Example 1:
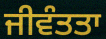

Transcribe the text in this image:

ਜੀਵੰਤਤਾ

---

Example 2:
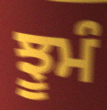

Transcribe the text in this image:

ਝੂਮੰ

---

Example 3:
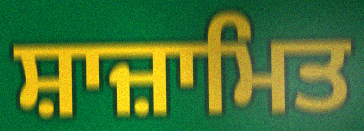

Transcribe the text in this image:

ਸ਼ਾਜ਼ਾਮਿਤ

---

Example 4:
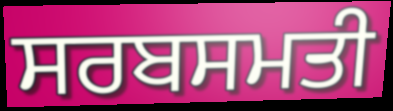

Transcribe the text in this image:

ਸਰਬਸਮਤੀ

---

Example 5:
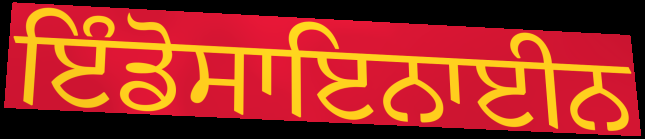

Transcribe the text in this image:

ਇੰਡੋਸਾਇਨਾਈਨ